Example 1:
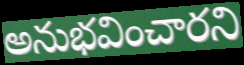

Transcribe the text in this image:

అనుభవించారని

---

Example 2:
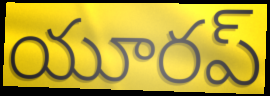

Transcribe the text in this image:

యూరప్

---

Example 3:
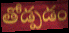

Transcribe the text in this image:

తోడ్పడం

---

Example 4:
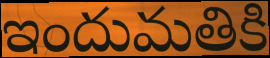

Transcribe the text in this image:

ఇందుమతికి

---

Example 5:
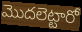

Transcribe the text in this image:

మొదలెట్టారో